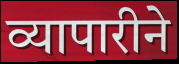
व्यापारीने